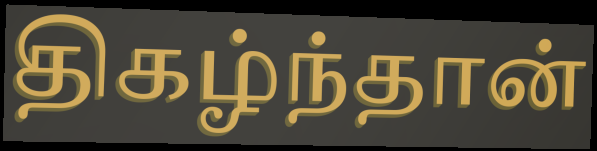
திகழ்ந்தான்